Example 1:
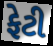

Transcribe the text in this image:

ફેટી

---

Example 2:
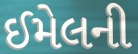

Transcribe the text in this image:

ઈમેલની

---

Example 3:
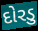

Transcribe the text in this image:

દોરડુ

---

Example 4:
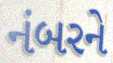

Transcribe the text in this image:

નંબરને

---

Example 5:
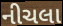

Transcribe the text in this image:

નીચલા